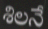
శిలనే